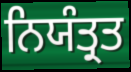
ਨਿਯੰਤ੍ਰਤ